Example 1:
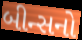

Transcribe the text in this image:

બીન્સનો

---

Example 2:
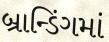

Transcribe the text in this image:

બ્રાન્ડિંગમાં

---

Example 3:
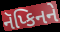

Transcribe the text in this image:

નૅપ્કિનને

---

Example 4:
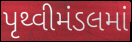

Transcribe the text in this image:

પૃથ્વીમંડલમાં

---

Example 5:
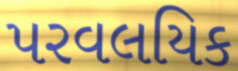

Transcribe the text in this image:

પરવલયિક